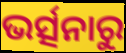
ଭର୍ତ୍ସନାରୁ